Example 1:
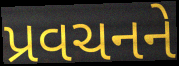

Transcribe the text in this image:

પ્રવચનને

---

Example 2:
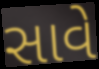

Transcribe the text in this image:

સાવે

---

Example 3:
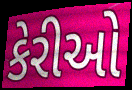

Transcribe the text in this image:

કેરીઓ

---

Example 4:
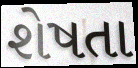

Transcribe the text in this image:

શેષતા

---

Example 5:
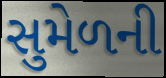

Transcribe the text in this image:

સુમેળની